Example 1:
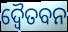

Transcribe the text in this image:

ଦ୍ବୈତବନ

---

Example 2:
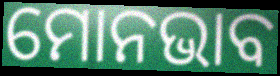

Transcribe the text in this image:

ମୋନଭାବ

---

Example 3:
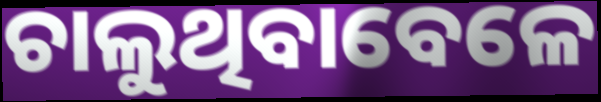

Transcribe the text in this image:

ଚାଲୁଥିବାବେଳେ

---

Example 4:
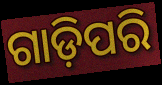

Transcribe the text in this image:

ଗାଡ଼ିପରି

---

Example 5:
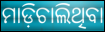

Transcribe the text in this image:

ମାଡ଼ିଚାଲିଥିବା